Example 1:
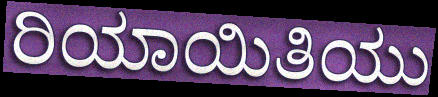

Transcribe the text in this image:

ರಿಯಾಯಿತಿಯು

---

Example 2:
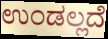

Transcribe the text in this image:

ಉಂಡಲ್ಲದೆ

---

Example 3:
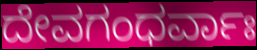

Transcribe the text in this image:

ದೇವಗಂಧರ್ವಾಃ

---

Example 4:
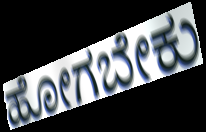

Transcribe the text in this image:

ಹೋಗಬೇಕು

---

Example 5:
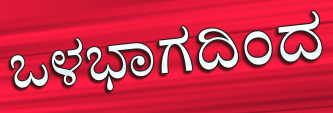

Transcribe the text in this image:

ಒಳಭಾಗದಿಂದ